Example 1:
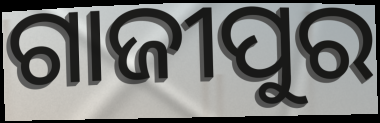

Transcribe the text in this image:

ଗାଜୀପୁର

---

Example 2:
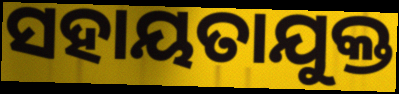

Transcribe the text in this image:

ସହାୟତାଯୁକ୍ତ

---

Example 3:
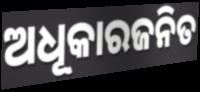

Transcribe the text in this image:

ଅଧୂକାରଜନିତ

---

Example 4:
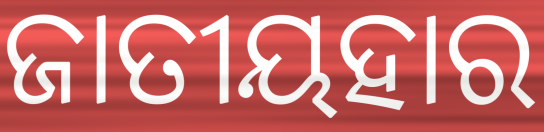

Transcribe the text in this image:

ଜାତୀୟହାର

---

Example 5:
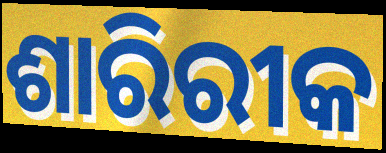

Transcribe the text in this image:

ଶାରିରୀକ